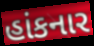
હાંકનાર